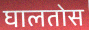
घालतोस